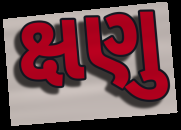
ક્ષણુ